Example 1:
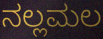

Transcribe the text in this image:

ನಲ್ಲಮಲ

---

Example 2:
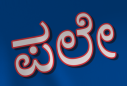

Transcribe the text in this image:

ಪಲೇ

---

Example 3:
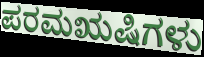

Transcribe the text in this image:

ಪರಮಋಷಿಗಳು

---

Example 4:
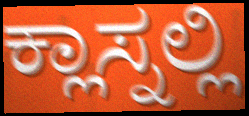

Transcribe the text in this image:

ಕ್ಲಾಸ್ನಲ್ಲಿ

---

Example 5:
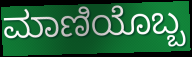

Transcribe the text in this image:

ಮಾಣಿಯೊಬ್ಬ